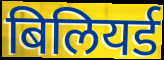
बिलियर्ड